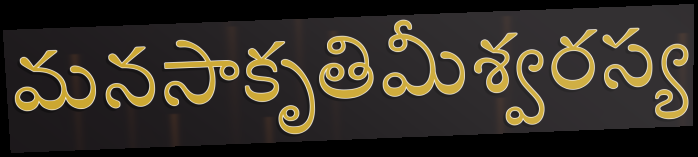
మనసాకృతిమీశ్వరస్య